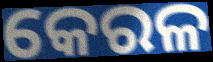
କେରଳ